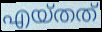
എയ്തത്